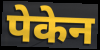
पेकेन